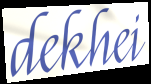
dekhei